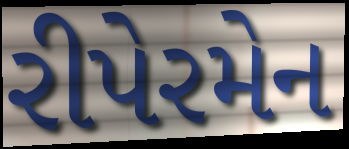
રીપેરમેન